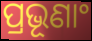
ପ୍ରଭୂଣାଂ